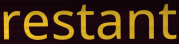
restant